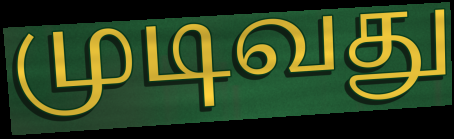
முடிவது